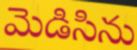
మెడిసిను